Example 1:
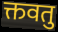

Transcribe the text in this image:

क्तवतु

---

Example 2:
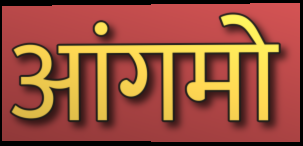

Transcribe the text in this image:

आंगमो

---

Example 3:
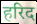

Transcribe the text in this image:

हरिद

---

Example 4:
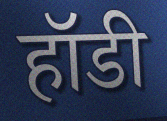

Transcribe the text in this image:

हॉडी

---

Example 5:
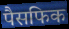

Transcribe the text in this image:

पैसफिक